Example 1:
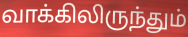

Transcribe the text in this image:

வாக்கிலிருந்தும்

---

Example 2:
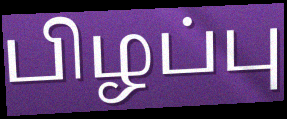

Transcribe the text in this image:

பிழப்பு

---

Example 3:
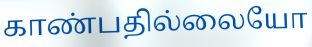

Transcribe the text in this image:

காண்பதில்லையோ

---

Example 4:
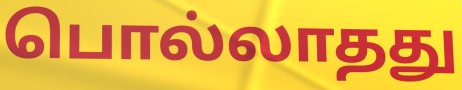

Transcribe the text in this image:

பொல்லாதது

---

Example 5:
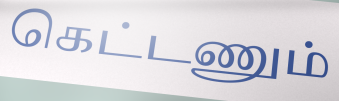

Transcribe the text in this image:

கெட்டணும்